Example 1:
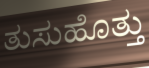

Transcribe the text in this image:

ತುಸುಹೊತ್ತು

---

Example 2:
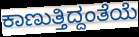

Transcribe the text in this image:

ಕಾಣುತ್ತಿದ್ದಂತೆಯೆ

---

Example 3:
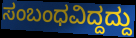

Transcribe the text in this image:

ಸಂಬಂಧವಿದ್ದದ್ದು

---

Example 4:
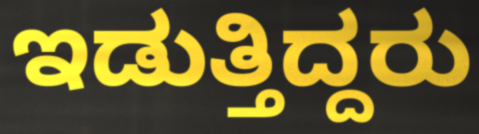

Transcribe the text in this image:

ಇಡುತ್ತಿದ್ದರು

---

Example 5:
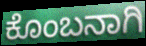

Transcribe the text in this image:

ಕೊಂಬನಾಗಿ